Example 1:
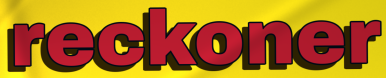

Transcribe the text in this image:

reckoner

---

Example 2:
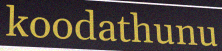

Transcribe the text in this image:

koodathunu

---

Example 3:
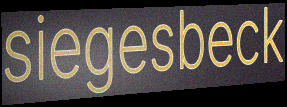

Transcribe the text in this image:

siegesbeck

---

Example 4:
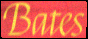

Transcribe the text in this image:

Bates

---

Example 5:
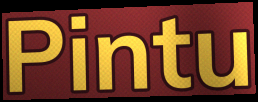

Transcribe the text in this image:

Pintu